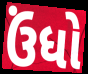
ઉંધો